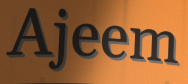
Ajeem